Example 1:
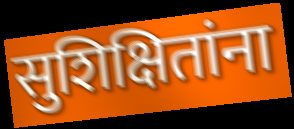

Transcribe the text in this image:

सुशिक्षितांना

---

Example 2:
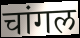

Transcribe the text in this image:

चांगल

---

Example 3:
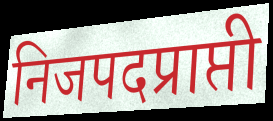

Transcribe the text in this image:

निजपदप्राप्ती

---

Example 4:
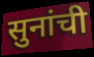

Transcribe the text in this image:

सुनांची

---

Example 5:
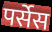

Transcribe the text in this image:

पर्सेस